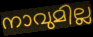
നാവുമില്ല